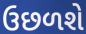
ઉછળશે